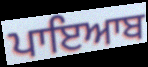
ਪਾਇਆਬ